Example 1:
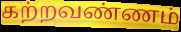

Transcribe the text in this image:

கற்றவண்ணம்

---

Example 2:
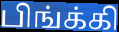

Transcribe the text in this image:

பிங்க்கி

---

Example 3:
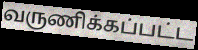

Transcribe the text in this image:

வருணிக்கப்பட்ட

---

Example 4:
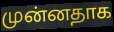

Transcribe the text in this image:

முன்னதாக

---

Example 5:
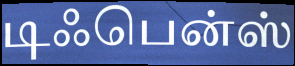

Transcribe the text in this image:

டிஃபென்ஸ்